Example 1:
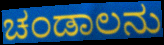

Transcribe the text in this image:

ಚಂಡಾಲನು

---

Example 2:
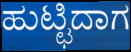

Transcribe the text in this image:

ಹುಟ್ಟಿದಾಗ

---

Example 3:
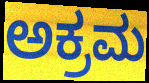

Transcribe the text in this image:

ಅಕ್ರಮ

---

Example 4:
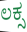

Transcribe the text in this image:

ಲಕ್ಸ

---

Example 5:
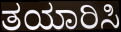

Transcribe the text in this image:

ತಯಾರಿಸಿ